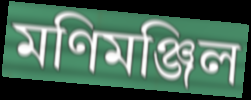
মণিমঞ্জিল